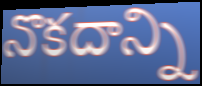
నొకదాన్ని